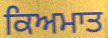
ਕਿਅਮਾਤ